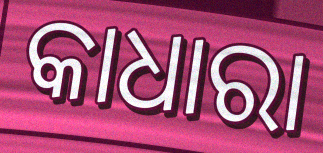
କାଧାରା